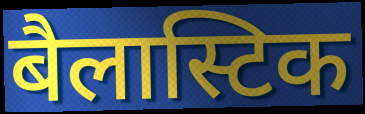
बैलास्टिक